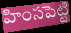
హింసపెట్టి